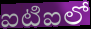
ఐటిఐలో